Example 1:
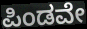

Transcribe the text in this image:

ಪಿಂಡವೇ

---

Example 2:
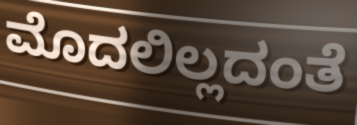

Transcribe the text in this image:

ಮೊದಲಿಲ್ಲದಂತೆ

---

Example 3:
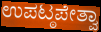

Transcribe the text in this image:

ಉಪಟ್ಠಪೇತ್ವಾ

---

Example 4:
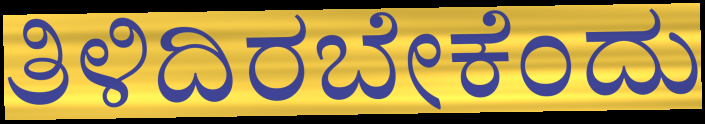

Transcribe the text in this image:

ತಿಳಿದಿರಬೇಕೆಂದು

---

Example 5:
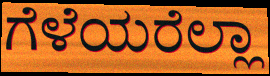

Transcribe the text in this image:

ಗೆಳೆಯರೆಲ್ಲಾ